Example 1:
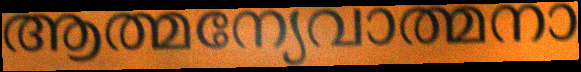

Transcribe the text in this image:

ആത്മന്യേവാത്മനാ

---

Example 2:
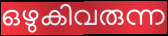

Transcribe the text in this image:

ഒഴുകിവരുന്ന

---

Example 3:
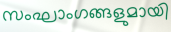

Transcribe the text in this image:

സംഘാംഗങ്ങളുമായി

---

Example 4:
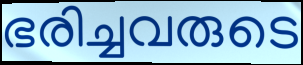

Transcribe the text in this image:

ഭരിച്ചവരുടെ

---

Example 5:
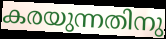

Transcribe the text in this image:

കരയുന്നതിനു